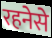
रहनेसे